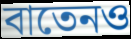
বাতেনও